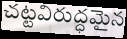
చట్టవిరుద్ధమైన